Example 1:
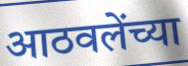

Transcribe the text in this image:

आठवलेंच्या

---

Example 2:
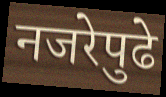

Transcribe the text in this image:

नजरेपुढे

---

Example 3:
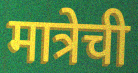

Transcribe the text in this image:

मात्रेची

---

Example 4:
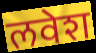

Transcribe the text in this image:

लवेश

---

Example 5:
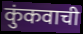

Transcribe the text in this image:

कुंकवाची